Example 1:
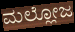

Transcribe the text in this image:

ಮಲ್ಲೋಜ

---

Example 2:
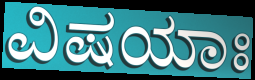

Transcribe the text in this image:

ವಿಷಯಾಃ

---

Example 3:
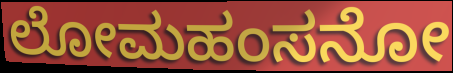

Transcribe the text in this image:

ಲೋಮಹಂಸನೋ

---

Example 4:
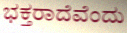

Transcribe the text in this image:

ಭಕ್ತರಾದೆವೆಂದು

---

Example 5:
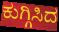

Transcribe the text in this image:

ಕುಗ್ಗಿಸಿದ